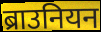
ब्राउनियन